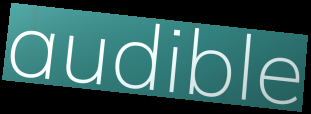
audible